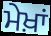
ਮੇਖ਼ਾਂ